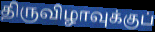
திருவிழாவுக்குப்